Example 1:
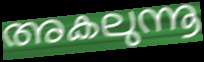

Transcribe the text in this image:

അകലുന്നൂ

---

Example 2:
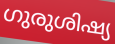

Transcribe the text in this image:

ഗുരുശിഷ്യ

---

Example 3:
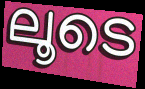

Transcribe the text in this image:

ലൂടെ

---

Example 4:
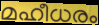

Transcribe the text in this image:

മഹീധരം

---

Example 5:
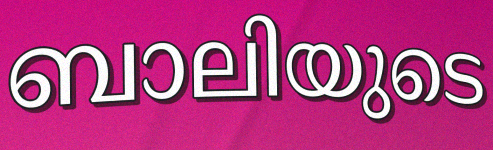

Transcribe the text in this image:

ബാലിയുടെ